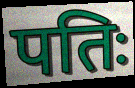
पतिः